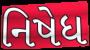
નિષેધ